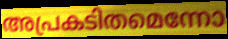
അപ്രകടിതമെന്നോ